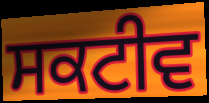
ਸਕਟੀਵ